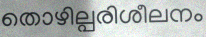
തൊഴില്പരിശീലനം